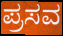
ಪ್ರಸವ